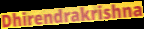
Dhirendrakrishna